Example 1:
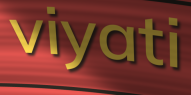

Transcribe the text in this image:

viyati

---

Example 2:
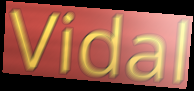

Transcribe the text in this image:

Vidal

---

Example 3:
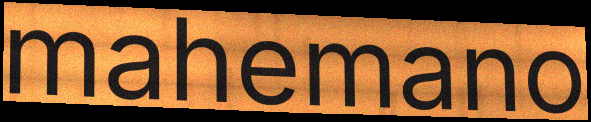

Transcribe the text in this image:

mahemano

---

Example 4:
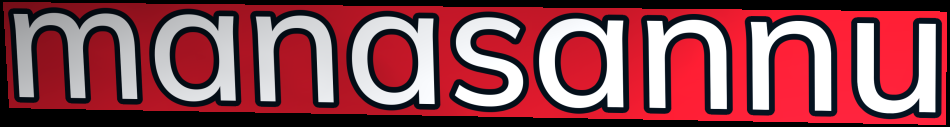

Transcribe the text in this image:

manasannu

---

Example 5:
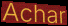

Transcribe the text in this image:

Achar